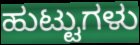
ಹುಟ್ಟುಗಳು